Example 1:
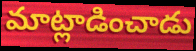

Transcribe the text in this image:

మాట్లాడించాడు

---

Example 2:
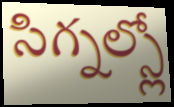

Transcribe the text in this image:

సిగ్నల్స్లో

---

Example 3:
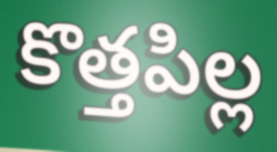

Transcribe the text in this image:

కొత్తపిల్ల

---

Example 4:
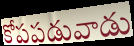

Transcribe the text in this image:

కోపపడువాడు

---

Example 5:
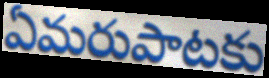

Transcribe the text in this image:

ఏమరుపాటకు